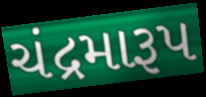
ચંદ્રમારૂપ